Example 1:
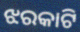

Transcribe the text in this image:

ଝରକାଟି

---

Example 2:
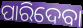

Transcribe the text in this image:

ପାରିଦେବା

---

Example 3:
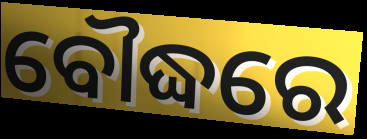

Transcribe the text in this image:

ବୌଦ୍ଧରେ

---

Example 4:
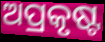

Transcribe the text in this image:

ଅପ୍ରକୃଷ୍ଟ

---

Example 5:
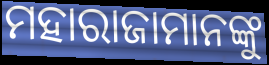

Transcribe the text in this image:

ମହାରାଜାମାନଙ୍କୁ